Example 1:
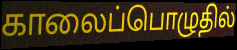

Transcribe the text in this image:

காலைப்பொழுதில்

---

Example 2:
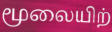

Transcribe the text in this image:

மூலையிற்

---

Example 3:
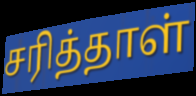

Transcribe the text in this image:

சரித்தாள்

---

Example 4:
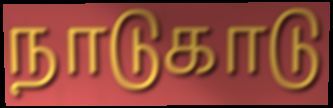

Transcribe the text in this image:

நாடுகாடு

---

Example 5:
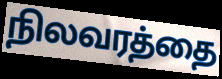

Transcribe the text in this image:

நிலவரத்தை